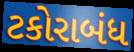
ટકોરાબંધ